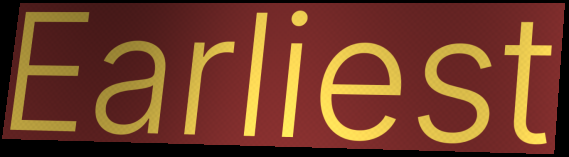
Earliest